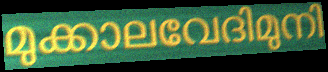
മുക്കാലവേദിമുനി